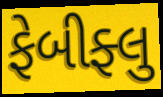
ફેબીફ્લુ